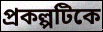
প্রকল্পটিকে